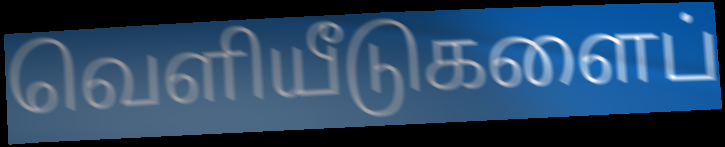
வெளியீடுகளைப்